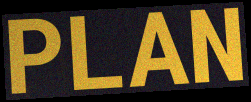
PLAN